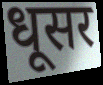
धूसर